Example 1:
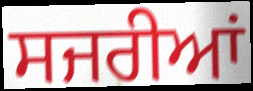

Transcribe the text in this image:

ਸਜਰੀਆਂ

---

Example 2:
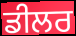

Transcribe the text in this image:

ਡੀਲਰ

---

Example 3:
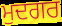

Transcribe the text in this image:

ਮੁਦਗਰ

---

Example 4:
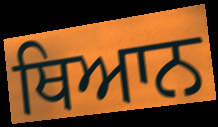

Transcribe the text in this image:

ਥਿਆਨ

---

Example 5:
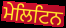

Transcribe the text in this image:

ਮੇਲਿਟਿਨ